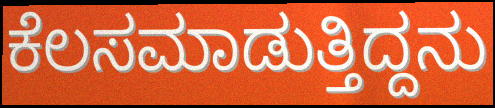
ಕೆಲಸಮಾಡುತ್ತಿದ್ದನು